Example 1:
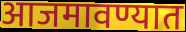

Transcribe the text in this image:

आजमावण्यात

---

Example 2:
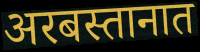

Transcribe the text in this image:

अरबस्तानात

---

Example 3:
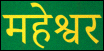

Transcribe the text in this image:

महेश्वर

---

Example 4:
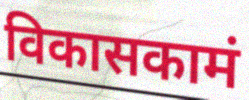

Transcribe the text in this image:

विकासकामं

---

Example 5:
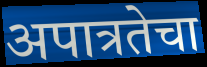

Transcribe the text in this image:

अपात्रतेचा